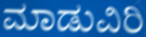
ಮಾಡುವಿರಿ